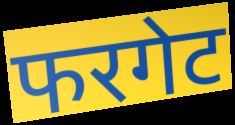
फरगेट